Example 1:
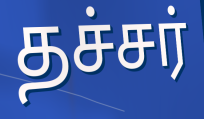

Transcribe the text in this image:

தச்சர்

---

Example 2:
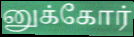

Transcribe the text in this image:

னுக்கோர்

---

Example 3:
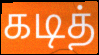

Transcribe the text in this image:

கடித்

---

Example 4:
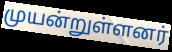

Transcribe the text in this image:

முயன்றுள்ளனர்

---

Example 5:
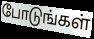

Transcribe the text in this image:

போடுங்கள்